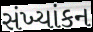
સંખ્યાંકન